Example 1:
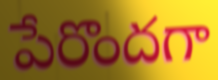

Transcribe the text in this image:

పేరొందగా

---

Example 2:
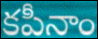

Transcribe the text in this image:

కపీనాం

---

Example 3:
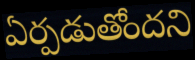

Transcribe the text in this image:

ఏర్పడుతోందని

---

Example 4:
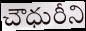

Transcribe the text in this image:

చౌధురీని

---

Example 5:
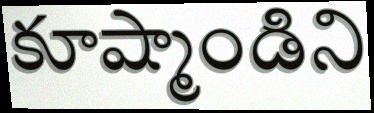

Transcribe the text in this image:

కూష్మాండిని